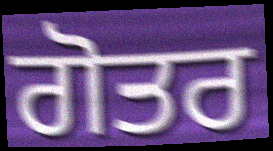
ਗੋਤਰ